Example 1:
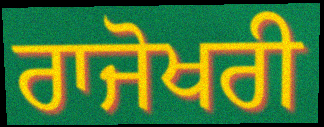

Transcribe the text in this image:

ਰਾਜੋਖਰੀ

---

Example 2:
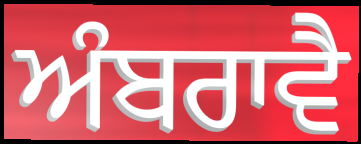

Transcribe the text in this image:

ਅੰਬਰਾਵੈ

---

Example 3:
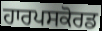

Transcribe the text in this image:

ਹਾਰਪਸਕੋਰਡ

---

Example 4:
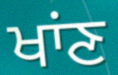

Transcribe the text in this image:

ਖਾਂਣ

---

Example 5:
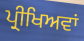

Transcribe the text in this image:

ਪ੍ਰੀਖਿਅਵਾਂ